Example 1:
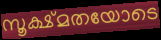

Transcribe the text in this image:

സൂക്ഷ്മതയോടെ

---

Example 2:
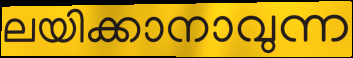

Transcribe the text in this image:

ലയിക്കാനാവുന്ന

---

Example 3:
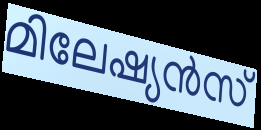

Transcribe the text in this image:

മിലേഷ്യൻസ്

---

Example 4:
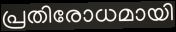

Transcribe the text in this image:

പ്രതിരോധമായി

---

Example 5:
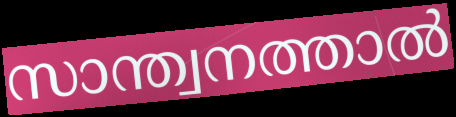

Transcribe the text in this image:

സാന്ത്വനത്താൽ